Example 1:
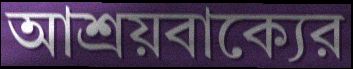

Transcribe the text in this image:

আশ্রয়বাক্যের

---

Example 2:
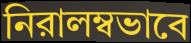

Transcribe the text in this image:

নিরালম্বভাবে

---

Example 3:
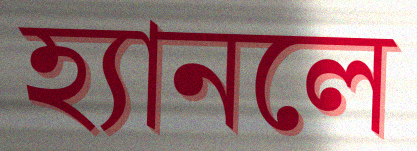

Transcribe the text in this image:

হ্যানলে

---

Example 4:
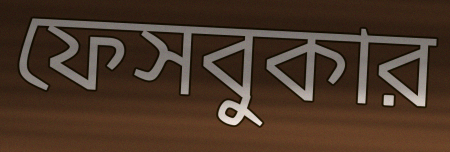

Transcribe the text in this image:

ফেসবুকার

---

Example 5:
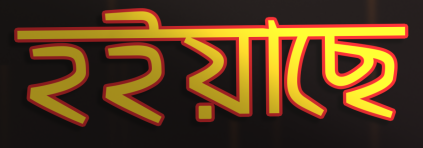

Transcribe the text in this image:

হইয়াছে